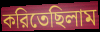
করিতেছিলাম